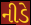
નીડે